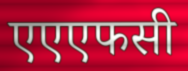
एएएफसी